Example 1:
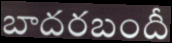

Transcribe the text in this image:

బాదరబందీ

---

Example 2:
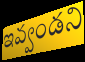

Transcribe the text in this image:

ఇవ్వండని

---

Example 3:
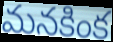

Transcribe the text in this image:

మనకింక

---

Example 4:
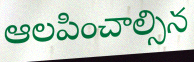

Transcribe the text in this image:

ఆలపించాల్సిన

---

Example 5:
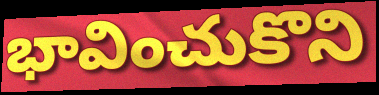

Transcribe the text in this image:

భావించుకొని